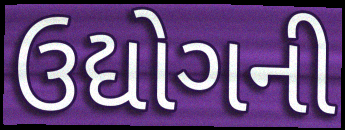
ઉદ્યોગની